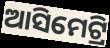
ଆସିମେଟ୍ରି